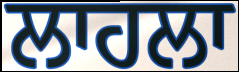
ਲਾਹਲਾ